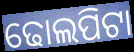
ଢୋଲପିଟା